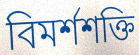
বিমর্শশক্তি